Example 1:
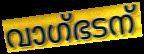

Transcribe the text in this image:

വാഗ്ഭടന്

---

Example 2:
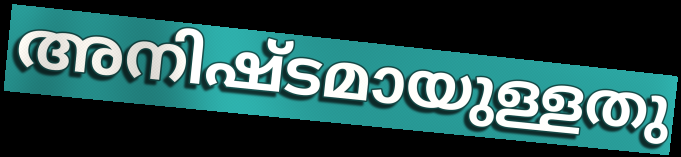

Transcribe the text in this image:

അനിഷ്ടമായുള്ളതു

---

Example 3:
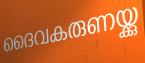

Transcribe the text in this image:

ദൈവകരുണയ്ക്കു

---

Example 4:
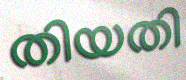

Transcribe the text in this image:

തിയതി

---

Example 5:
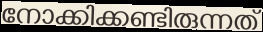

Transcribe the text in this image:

നോക്കിക്കണ്ടിരുന്നത്